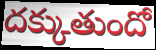
దక్కుతుందో